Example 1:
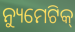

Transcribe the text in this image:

ନ୍ୟୁମେଟିକ୍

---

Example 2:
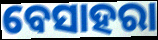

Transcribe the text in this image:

ବେସାହରା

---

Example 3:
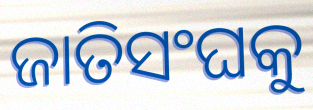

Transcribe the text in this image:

ଜାତିସଂଘକୁ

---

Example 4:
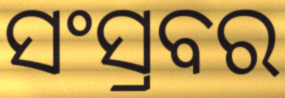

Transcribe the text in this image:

ସଂସ୍ରବର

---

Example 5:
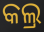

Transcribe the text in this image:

କଲ୍ର